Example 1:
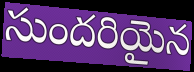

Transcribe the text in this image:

సుందరియైన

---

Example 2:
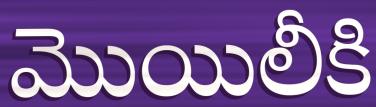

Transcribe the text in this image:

మొయిలీకి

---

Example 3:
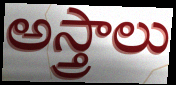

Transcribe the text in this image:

అస్త్రాలు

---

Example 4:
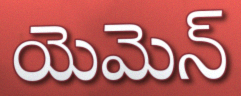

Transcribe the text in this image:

యెమెన్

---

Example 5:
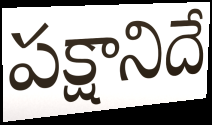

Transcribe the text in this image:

పక్షానిదే